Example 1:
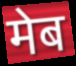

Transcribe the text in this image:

मेब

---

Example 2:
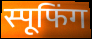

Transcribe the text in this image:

स्पूफिंग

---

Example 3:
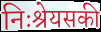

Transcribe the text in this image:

निःश्रेयसकी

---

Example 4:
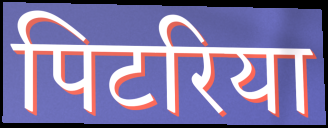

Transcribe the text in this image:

पिटरिया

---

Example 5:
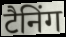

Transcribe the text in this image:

टैनिंग